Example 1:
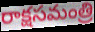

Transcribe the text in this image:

రాక్షసమంత్రి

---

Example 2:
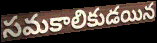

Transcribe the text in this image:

సమకాలికుడయిన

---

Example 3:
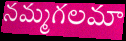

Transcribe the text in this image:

నమ్మగలమా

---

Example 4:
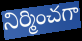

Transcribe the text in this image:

నిర్మించగా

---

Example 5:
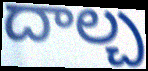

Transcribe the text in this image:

దాల్చ